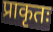
प्राकृतः